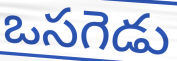
ఒసగెడు